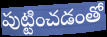
పుట్టించడంతో